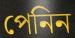
পেনিন